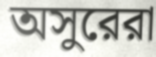
অসুরেরা